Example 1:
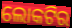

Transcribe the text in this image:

ଲୋକଟିର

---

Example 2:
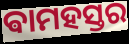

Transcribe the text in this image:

ଵାମହସ୍ତର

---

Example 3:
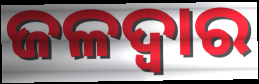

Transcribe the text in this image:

ଜଳଦ୍ୱାର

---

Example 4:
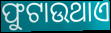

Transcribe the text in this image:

ଫୁଟାଉଥାଏ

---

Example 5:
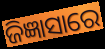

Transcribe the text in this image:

ଜିଜ୍ଞାସାରେ